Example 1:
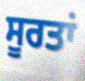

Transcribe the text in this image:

ਸੂਰਤਾਂ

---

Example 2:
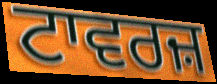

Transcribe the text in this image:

ਟਾਵਰਜ਼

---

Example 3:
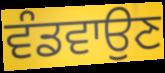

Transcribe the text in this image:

ਵੰਡਵਾਉਣ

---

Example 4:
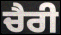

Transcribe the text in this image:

ਚੈਰੀ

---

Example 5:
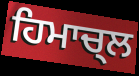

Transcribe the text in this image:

ਹਿਮਾਚ੍ਲ